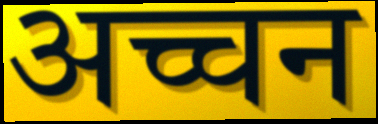
अच्चन